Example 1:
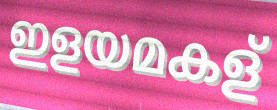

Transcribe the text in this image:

ഇളയമകള്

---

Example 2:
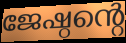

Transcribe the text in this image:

ജേഷ്ഠന്റെ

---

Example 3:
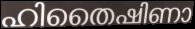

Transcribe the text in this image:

ഹിതൈഷിണാ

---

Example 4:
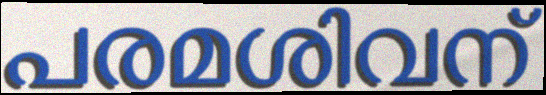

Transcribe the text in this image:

പരമശിവന്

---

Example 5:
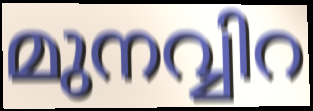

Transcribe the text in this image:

മുനവ്വിറ